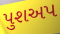
પુશઅપ